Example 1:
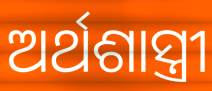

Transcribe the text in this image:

ଅର୍ଥଶାସ୍ତ୍ରୀ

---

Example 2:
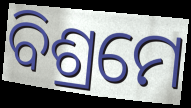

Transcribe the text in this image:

ବିଶ୍ରମେ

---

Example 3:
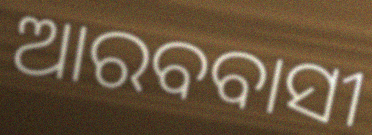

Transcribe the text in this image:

ଆରବବାସୀ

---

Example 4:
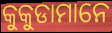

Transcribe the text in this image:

କୁକୁଡାମାନେ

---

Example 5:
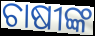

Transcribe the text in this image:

ଚାଷୀଙ୍କ